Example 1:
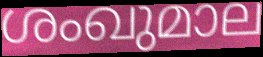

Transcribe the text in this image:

ശംഖുമാല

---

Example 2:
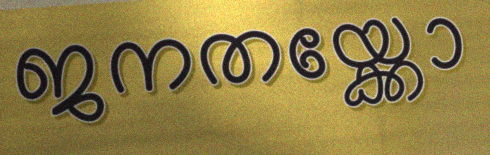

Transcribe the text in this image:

ജനതയ്ക്കോ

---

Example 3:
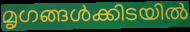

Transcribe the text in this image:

മൃഗങ്ങൾക്കിടയിൽ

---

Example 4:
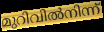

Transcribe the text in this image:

മുറിവിൽനിന്ന്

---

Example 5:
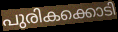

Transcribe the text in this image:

പുരികക്കൊടി